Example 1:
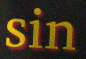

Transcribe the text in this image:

sin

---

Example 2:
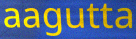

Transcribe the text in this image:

aagutta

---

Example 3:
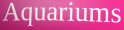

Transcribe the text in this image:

Aquariums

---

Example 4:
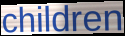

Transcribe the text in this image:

children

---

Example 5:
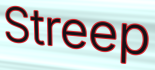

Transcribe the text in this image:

Streep